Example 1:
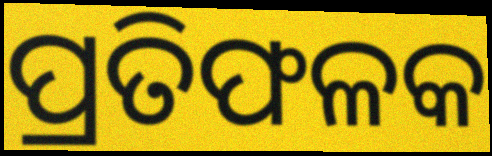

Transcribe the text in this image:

ପ୍ରତିଫଳକ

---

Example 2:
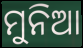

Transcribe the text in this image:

ମୁନିଆ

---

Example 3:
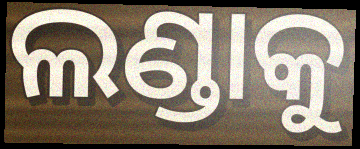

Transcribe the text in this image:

ଲଣ୍ଡାକୁ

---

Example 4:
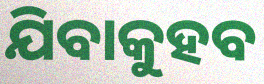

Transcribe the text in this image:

ଯିବାକୁହବ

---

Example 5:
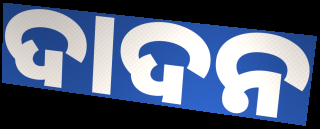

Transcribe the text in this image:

ଦାଦନ